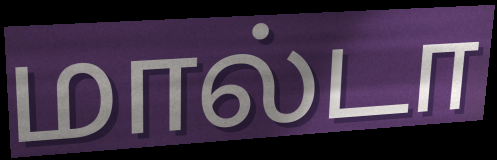
மால்டா